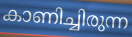
കാണിച്ചിരുന്ന